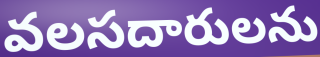
వలసదారులను